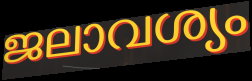
ജലാവശ്യം